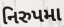
નિરુપમા